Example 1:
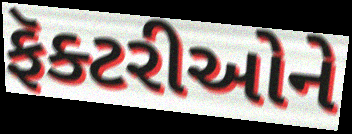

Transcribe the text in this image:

ફૅક્ટરીઓને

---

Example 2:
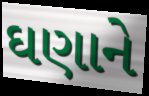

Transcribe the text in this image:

ઘણાને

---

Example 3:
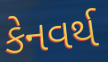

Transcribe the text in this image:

કેનવર્થ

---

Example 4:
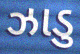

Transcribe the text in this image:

ઝાડુ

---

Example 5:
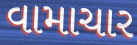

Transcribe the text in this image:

વામાચાર